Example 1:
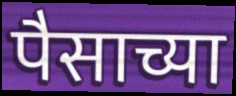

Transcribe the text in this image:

पैसाच्या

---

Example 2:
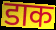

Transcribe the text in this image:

डाक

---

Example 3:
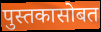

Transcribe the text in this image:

पुस्तकासोबत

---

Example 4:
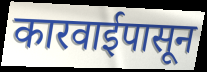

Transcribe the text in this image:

कारवाईपासून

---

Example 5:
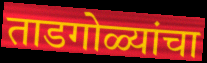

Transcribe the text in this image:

ताडगोळ्यांचा